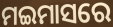
ମଇମାସରେ